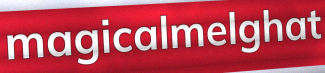
magicalmelghat